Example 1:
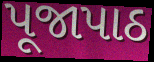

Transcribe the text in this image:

પૂજાપાઠ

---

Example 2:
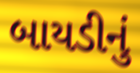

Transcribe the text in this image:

બાયડીનું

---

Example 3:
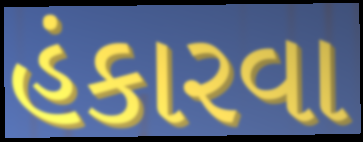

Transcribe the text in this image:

હંકારવા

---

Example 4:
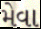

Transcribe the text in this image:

મેવા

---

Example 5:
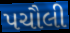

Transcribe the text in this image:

પચૌલી